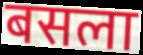
बसला